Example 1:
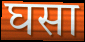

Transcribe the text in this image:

घसा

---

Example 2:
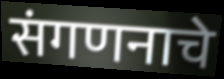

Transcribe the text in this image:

संगणनाचे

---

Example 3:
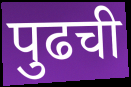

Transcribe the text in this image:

पुढची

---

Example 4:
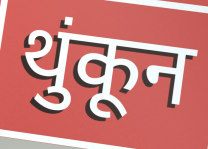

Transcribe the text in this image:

थुंकून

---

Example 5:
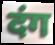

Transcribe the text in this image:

दंग